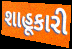
શાહૂકારી